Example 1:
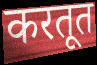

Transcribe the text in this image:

करतूत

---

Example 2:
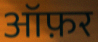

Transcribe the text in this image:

ऑफ़र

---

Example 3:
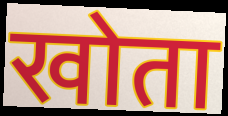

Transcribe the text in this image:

खोता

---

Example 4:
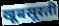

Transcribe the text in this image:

खूबसूरती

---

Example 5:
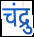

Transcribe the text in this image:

चंद्रु